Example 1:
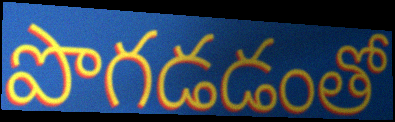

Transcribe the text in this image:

పొగడడంతో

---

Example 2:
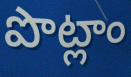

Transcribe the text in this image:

పొట్లాం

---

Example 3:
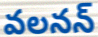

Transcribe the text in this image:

వలనన్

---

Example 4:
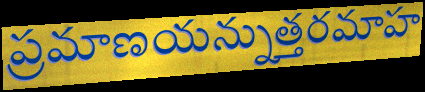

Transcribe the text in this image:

ప్రమాణయన్నుత్తరమాహ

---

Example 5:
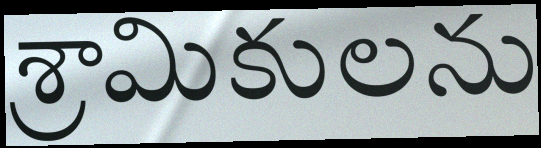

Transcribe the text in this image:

శ్రామికులను